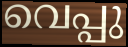
വെപ്പു